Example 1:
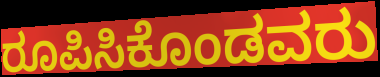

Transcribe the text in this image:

ರೂಪಿಸಿಕೊಂಡವರು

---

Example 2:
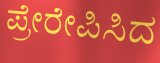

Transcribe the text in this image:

ಪ್ರೇರೇಪಿಸಿದ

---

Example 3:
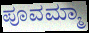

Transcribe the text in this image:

ಪೂವಮ್ಮಾ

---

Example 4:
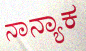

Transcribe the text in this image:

ನಾನ್ಯಾಕ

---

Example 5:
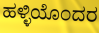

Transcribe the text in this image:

ಹಳ್ಳಿಯೊಂದರ